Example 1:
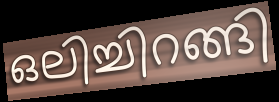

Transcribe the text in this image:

ഒലിച്ചിറങ്ങി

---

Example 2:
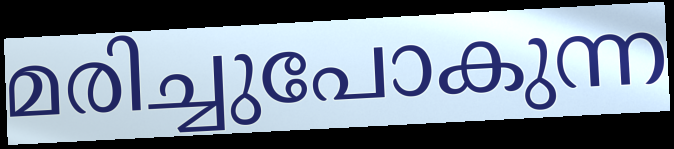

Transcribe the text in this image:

മരിച്ചുപോകുന്ന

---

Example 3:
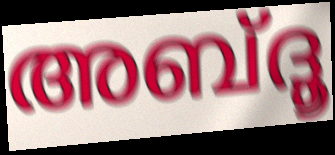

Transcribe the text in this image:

അബ്ദൂ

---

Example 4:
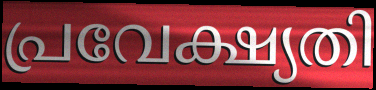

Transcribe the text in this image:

പ്രവേക്ഷ്യതി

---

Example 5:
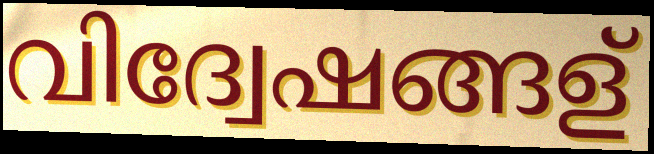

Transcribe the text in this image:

വിദ്വേഷങ്ങള്